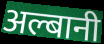
अल्बानी